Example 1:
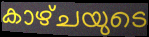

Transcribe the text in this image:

കാഴ്‌ചയുടെ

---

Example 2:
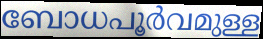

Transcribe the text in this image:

ബോധപൂർവമുള്ള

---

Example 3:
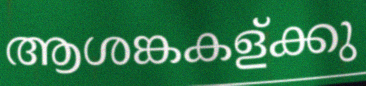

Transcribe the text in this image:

ആശങ്കകള്ക്കു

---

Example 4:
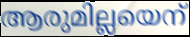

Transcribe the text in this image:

ആരുമില്ലയെന്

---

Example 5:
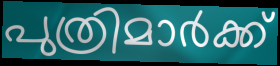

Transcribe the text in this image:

പുത്രിമാർക്ക്